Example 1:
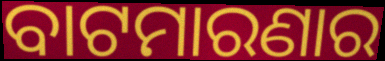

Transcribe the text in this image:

ବାଟମାରଣାର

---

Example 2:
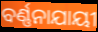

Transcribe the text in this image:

ବର୍ଣ୍ଣନାଯାୟୀ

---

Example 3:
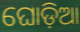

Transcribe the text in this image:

ଘୋଡ଼ିଆ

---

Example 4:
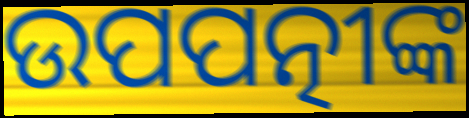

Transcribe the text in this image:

ଉପପତ୍ନୀଙ୍କ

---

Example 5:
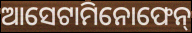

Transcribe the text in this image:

ଆସେଟାମିନୋଫେନ୍